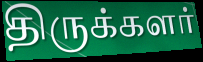
திருக்களர்